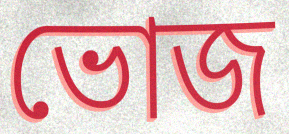
ভোজ